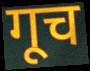
गूच